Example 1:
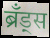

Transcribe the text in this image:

ब्रँड्स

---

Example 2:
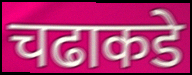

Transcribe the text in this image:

चढाकडे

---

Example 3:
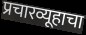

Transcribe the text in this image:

प्रचारव्यूहाचा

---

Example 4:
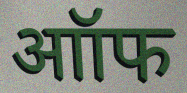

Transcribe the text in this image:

आॉफ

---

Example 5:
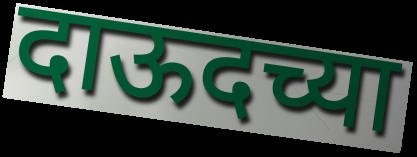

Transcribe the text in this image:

दाऊदच्या